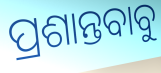
ପ୍ରଶାନ୍ତବାବୁ